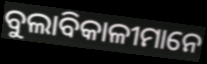
ବୁଲାବିକାଳୀମାନେ